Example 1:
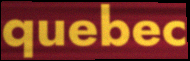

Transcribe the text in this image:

quebec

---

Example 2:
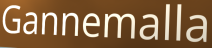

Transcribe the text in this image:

Gannemalla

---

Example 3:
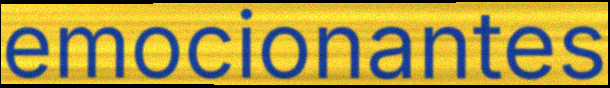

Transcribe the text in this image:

emocionantes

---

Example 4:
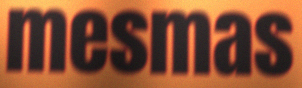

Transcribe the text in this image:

mesmas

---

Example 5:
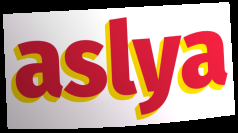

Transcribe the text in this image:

aslya